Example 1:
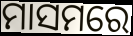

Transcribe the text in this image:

ମାସମରେ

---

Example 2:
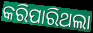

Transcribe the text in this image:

କରିପାରିଥଲା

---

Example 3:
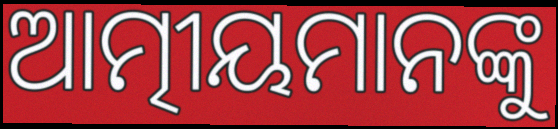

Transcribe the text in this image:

ଆତ୍ମୀୟମାନଙ୍କୁ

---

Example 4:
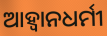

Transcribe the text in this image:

ଆହ୍ବାନଧର୍ମୀ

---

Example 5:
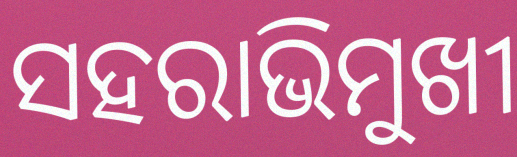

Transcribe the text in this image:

ସହରାଭିମୁଖୀ